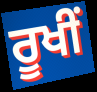
ਰੂਖੀਂ